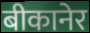
बीकानेर